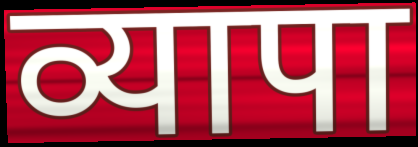
व्यापा